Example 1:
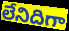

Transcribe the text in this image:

లేనిదిగా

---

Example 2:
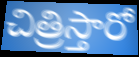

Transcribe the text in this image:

చిత్రిస్తారో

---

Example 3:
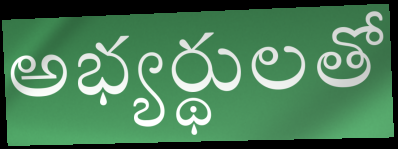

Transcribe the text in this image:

అభ్యర్థులతో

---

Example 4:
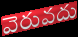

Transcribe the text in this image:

వెరువదు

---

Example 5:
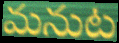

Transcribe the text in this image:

మనుట